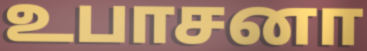
உபாசனா